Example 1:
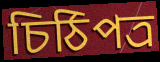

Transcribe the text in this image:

চিঠিপত্র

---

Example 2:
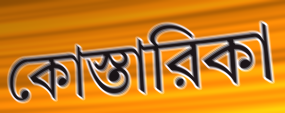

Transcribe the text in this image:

কোস্তারিকা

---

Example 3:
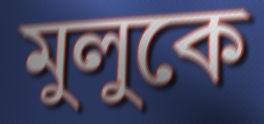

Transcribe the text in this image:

মুলুকে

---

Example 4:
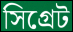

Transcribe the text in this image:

সিগ্রেট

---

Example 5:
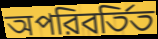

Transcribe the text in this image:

অপরিবর্তিত